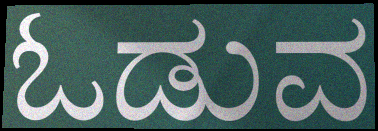
ಓಡುವ